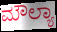
ಮೌಲ್ಯಾ